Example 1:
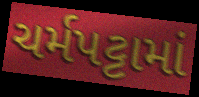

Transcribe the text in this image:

ચર્મપટ્ટામાં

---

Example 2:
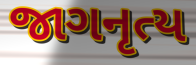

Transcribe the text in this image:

જાગનૃત્ય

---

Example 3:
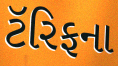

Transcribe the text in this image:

ટૅરિફના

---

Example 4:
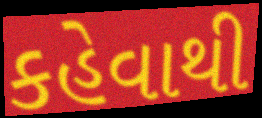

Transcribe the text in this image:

કહેવાથી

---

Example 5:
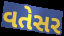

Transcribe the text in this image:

વતેસર